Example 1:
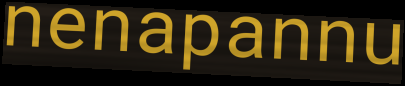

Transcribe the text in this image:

nenapannu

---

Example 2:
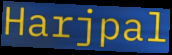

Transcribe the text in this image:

Harjpal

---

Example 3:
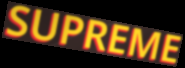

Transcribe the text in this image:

SUPREME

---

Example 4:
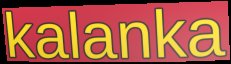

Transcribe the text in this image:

kalanka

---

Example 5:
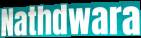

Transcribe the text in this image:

Nathdwara